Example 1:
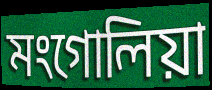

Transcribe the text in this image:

মংগোলিয়া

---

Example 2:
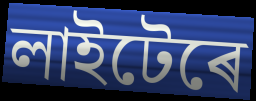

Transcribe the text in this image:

লাইটেৰে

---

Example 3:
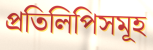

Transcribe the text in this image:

প্ৰতিলিপিসমূহ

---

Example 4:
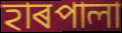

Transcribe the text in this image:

হাৰপালা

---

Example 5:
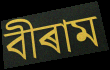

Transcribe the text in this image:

বীৰাম